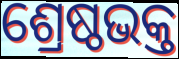
ଶ୍ରେଷ୍ଠଭକ୍ତ